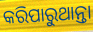
କରିପାରୁଥାନ୍ତା